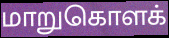
மாறுகொளக்